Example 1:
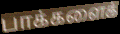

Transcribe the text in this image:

பாக்களைக்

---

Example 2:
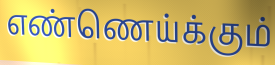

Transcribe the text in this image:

எண்ணெய்க்கும்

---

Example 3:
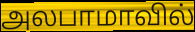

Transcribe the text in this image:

அலபாமாவில்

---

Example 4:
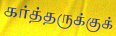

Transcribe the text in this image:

கர்த்தருக்குக்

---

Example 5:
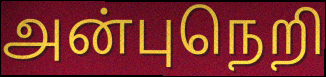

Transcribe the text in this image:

அன்புநெறி